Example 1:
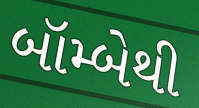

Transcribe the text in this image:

બૉમ્બેથી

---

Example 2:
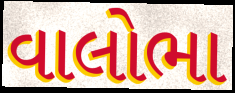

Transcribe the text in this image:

વાલોભા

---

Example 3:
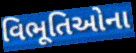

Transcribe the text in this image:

વિભૂતિઓના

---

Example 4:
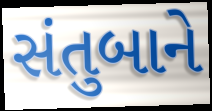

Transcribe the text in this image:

સંતુબાને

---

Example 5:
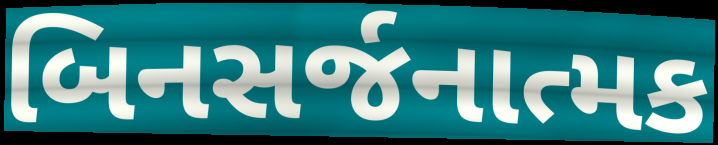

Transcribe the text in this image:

બિનસર્જનાત્મક